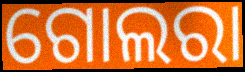
ଗୋଲରା